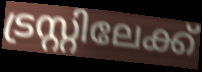
ട്രസ്റ്റിലേക്ക്